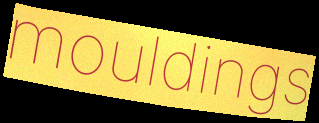
mouldings